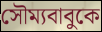
সৌম্যবাবুকে